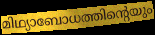
മിഥ്യാബോധത്തിന്റെയും